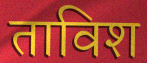
ताविश